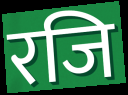
रजि